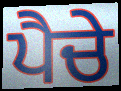
ਪੈਚੇ